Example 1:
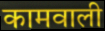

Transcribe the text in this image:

कामवाली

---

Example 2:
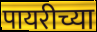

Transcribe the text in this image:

पायरीच्या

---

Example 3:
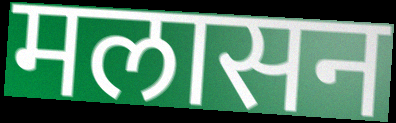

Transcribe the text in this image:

मलासन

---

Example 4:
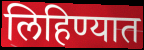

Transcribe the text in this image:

लिहिण्यात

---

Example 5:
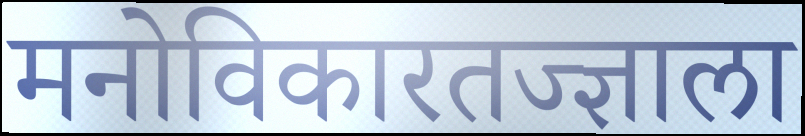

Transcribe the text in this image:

मनोविकारतज्ज्ञाला